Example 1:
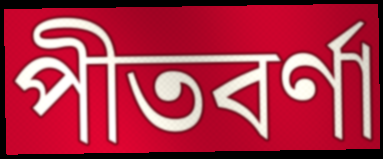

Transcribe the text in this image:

পীতবৰ্ণা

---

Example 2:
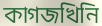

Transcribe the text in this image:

কাগজখিনি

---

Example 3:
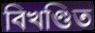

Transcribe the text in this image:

বিখণ্ডিত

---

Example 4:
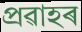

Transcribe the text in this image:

প্ৰৱাহৰ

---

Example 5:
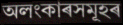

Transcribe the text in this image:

অলংকাৰসমূহৰ